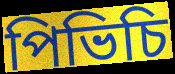
পিভিচি